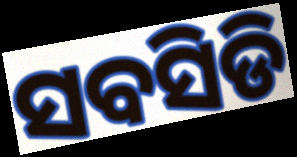
ସବସିଡି